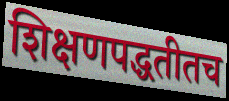
शिक्षणपद्धतीतच